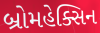
બ્રોમહેક્સિન